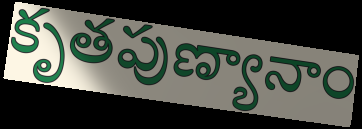
కృతపుణ్యానాం